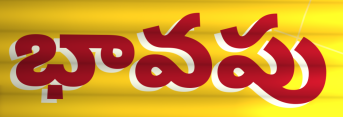
భావపు